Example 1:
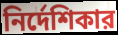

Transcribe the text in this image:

নির্দেশিকার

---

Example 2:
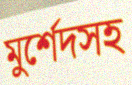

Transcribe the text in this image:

মুর্শেদসহ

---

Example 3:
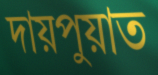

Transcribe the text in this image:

দায়পুয়াত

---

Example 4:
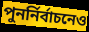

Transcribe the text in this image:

পুনর্নির্বাচনেও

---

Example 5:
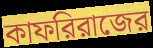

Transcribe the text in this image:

কাফরিরাজের